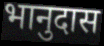
भानुदास